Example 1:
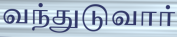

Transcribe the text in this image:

வந்துடுவார்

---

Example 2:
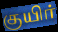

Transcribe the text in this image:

குயிர்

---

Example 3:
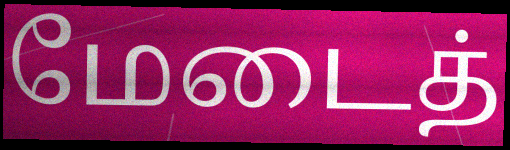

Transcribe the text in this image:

மேடைத்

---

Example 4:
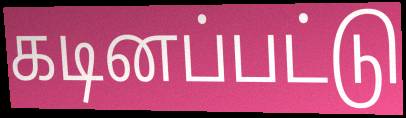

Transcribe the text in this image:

கடினப்பட்டு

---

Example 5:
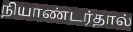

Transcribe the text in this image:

நியாண்டர்தால்